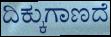
ದಿಕ್ಕುಗಾಣದೆ